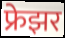
फ्रेझर